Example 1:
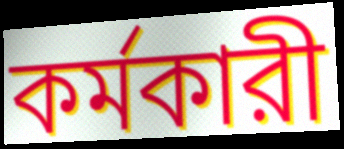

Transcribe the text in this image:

কর্মকারী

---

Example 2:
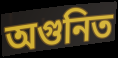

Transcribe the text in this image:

অগুনিত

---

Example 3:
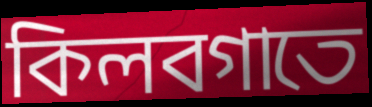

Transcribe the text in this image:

কিলবগাতে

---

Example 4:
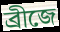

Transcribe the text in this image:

ব্রীজে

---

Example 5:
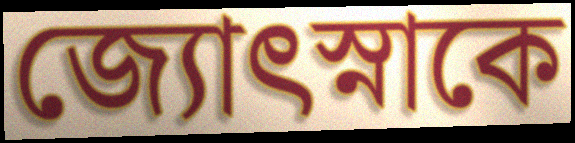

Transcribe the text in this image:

জ্যোৎস্নাকে